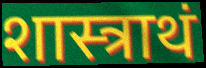
शास्त्राथं